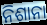
ନିଶାନା